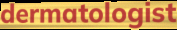
dermatologist